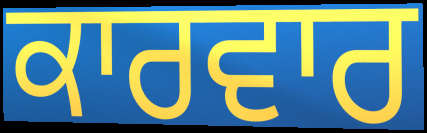
ਕਾਰਵਾਰ